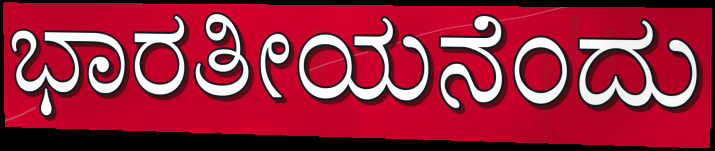
ಭಾರತೀಯನೆಂದು